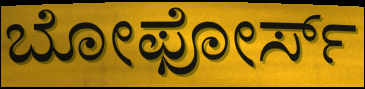
ಬೋಫೋರ್ಸ್